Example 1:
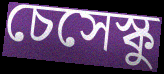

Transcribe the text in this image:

চেসেস্কু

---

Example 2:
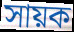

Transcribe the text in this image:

সায়ক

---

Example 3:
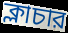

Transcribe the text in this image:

ক্লাচার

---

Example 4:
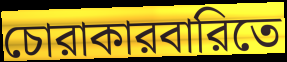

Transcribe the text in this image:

চোরাকারবারিতে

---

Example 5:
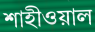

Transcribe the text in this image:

শাহীওয়াল